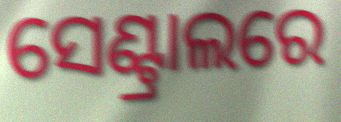
ସେଣ୍ଟ୍ରାଲରେ